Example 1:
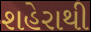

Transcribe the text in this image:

શહેરાથી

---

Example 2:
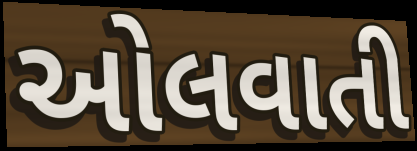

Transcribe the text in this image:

ઓલવાતી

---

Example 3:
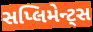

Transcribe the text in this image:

સપ્લિમેન્ટ્સ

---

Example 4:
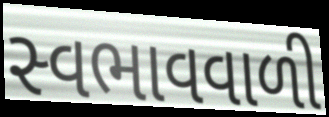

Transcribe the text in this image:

સ્વભાવવાળી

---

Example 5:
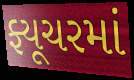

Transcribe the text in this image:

ફ્યૂચરમાં